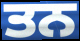
ਤਨ